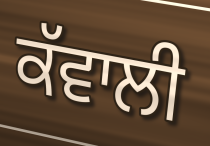
ਕੱਵਾਲੀ